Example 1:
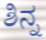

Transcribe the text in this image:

ಶಿನ್ನ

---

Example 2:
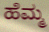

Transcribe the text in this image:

ಹೆಮ್ಮ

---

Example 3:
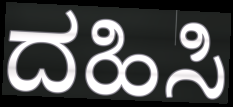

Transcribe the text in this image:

ದಹಿಸಿ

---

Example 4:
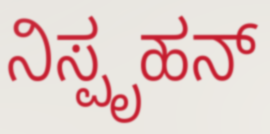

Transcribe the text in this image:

ನಿಸ್ಪೃಹನ್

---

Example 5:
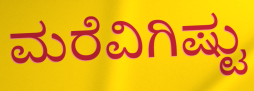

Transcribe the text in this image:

ಮರೆವಿಗಿಷ್ಟು